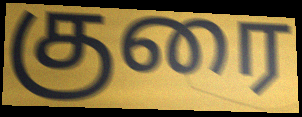
குரை